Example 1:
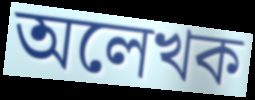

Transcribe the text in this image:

অলেখক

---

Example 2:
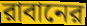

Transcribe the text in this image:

রাবানের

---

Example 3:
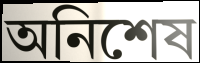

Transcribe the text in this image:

অনিশেষ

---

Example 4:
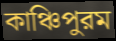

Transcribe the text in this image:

কাঞ্চিপুরম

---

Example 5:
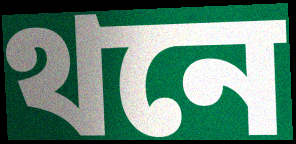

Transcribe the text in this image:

থনে